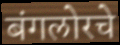
बंगलोरचे